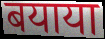
बयाया